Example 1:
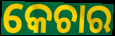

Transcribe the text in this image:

କେଚାର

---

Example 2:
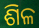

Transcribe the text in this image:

ଶିଳ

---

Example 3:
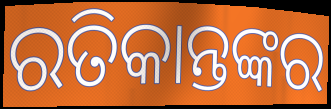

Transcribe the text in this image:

ରତିକାନ୍ତଙ୍କର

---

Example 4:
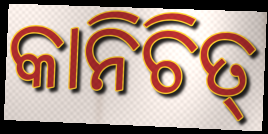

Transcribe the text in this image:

କାନିଚିତ୍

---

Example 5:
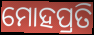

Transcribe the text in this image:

ମୋହପ୍ରତି